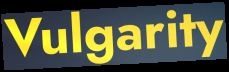
Vulgarity